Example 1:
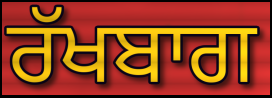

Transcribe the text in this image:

ਰੱਖਬਾਗ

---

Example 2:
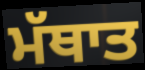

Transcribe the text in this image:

ਮੱਥਾਤ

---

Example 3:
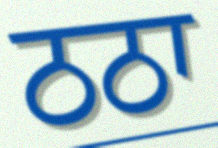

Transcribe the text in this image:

ਠਠਾ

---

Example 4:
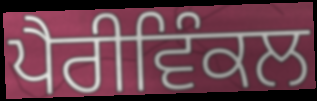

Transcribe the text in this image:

ਪੈਰੀਵਿੰਕਲ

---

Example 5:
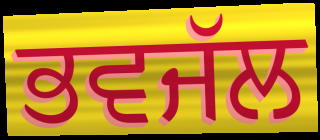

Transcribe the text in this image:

ਭਵਜੱਲ